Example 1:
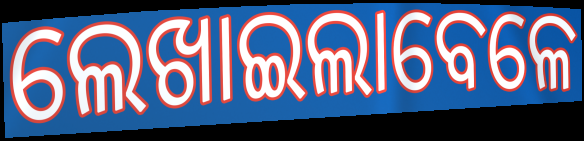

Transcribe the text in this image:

ଲେଖାଇଲାବେଳେ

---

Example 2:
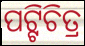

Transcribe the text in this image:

ପଟ୍ଟିଚିତ୍ର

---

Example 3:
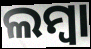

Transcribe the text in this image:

ଲମ୍ବା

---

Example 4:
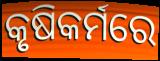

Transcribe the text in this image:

କୃଷିକର୍ମରେ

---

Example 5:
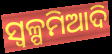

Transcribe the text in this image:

ସ୍ବଳ୍ପମିଆଦି